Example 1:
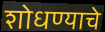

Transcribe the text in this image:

शोधण्याचे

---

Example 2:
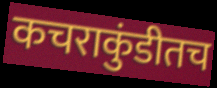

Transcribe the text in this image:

कचराकुंडीतच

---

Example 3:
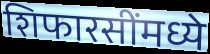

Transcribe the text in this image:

शिफारसींमध्ये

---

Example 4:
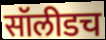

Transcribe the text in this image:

सॉलीडच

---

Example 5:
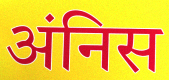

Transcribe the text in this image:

अंनिस